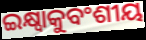
ଇକ୍ଷ୍ୱାକୁବଂଶୀୟ